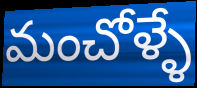
మంచోళ్ళే